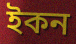
ইকন